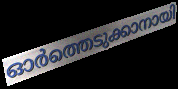
ഓർത്തെടുക്കാനായി